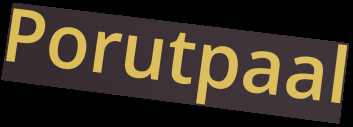
Porutpaal